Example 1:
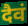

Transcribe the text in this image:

दैवं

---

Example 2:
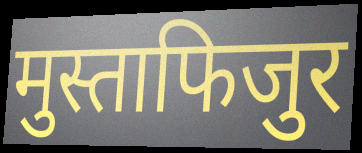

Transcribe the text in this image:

मुस्ताफिजुर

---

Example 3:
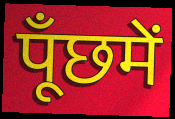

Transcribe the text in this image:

पूँछमें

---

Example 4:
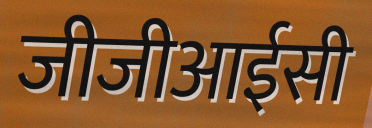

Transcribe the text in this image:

जीजीआईसी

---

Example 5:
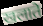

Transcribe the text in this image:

खलाते